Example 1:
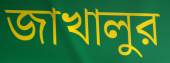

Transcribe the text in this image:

জাখালুর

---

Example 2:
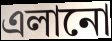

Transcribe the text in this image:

এলানো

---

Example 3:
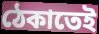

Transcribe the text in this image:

ঠেকাতেই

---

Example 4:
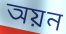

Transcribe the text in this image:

অয়ন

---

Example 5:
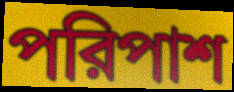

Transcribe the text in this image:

পরিপাশ